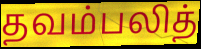
தவம்பலித்